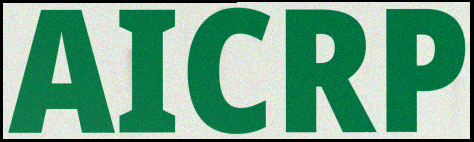
AICRP